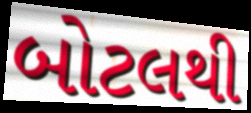
બોટલથી